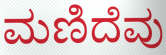
ಮಣಿದೆವು